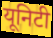
यूनिटी